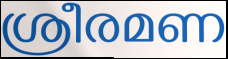
ശ്രീരമണ